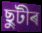
ছুটীৰ